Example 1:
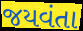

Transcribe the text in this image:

જયવંતા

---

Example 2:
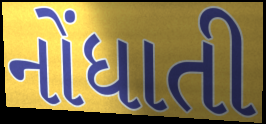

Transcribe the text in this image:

નોંધાતી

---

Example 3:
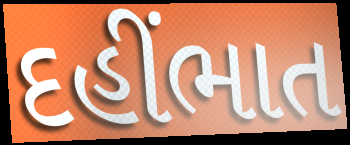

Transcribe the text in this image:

દહીંભાત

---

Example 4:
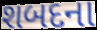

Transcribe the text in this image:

શબદના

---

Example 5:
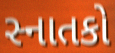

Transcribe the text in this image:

સ્નાતકો